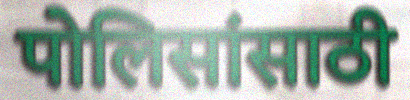
पोलिसांसाठी